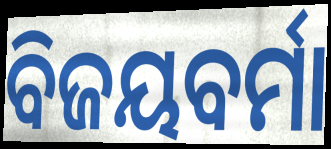
ବିଜୟବର୍ମା